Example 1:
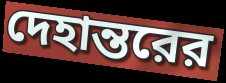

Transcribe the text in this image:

দেহান্তরের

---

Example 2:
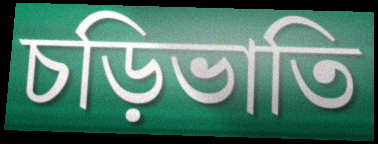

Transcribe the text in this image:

চড়িভাতি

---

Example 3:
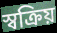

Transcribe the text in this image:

স্বক্রিয়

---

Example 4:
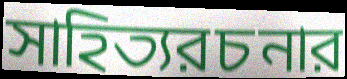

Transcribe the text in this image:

সাহিত্যরচনার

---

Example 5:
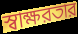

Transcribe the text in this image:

স্বাক্ষরতার